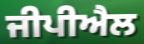
ਜੀਪੀਐਲ